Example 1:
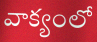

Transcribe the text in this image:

వాక్యంలో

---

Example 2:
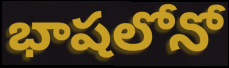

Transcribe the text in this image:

భాషలోనో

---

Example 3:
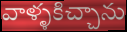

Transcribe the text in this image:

వాళ్ళకిచ్చాను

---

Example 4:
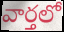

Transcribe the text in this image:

వార్తలో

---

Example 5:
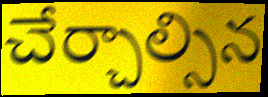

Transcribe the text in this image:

చేర్చాల్సిన